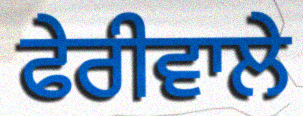
ਫੇਰੀਵਾਲੇ